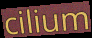
cilium